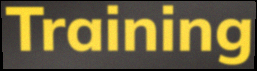
Training